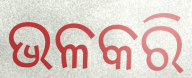
ଭଳକରି